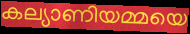
കല്യാണിയമ്മയെ